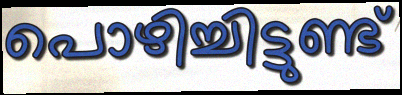
പൊഴിച്ചിട്ടുണ്ട്